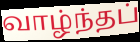
வாழ்ந்தப்